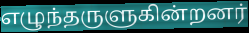
எழுந்தருளுகின்றனர்